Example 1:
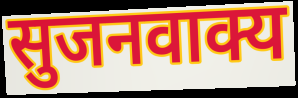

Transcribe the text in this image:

सुजनवाक्य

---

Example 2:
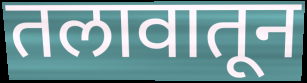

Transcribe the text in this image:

तलावातून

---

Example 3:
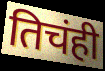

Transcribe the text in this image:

तिचंही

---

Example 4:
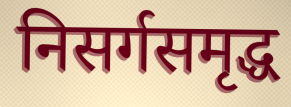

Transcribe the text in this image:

निसर्गसमृद्ध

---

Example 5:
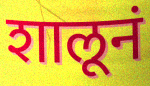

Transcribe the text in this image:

शालूनं